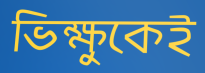
ভিক্ষুকেই